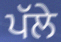
ਪੱਲੇ